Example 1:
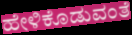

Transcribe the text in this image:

ಹೇಳಿಕೊಡುವಂತೆ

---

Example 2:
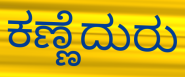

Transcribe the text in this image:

ಕಣ್ಣೆದುರು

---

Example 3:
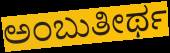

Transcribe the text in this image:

ಅಂಬುತೀರ್ಥ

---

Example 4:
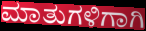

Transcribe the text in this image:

ಮಾತುಗಳಿಗಾಗಿ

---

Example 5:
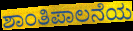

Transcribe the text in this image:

ಶಾಂತಿಪಾಲನೆಯ